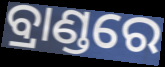
ବ୍ରାଣ୍ଡରେ